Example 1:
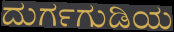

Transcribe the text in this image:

ದುರ್ಗಗುಡಿಯ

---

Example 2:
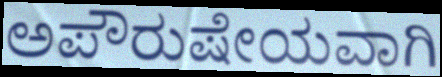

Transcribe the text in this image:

ಅಪೌರುಷೇಯವಾಗಿ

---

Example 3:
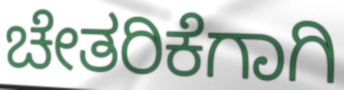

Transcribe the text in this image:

ಚೇತರಿಕೆಗಾಗಿ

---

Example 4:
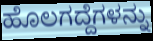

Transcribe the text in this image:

ಹೊಲಗದ್ದೆಗಳನ್ನು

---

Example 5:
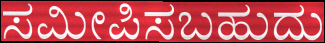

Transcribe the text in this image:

ಸಮೀಪಿಸಬಹುದು